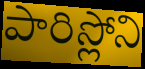
పారిస్లోని